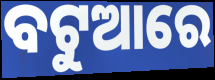
ବଟୁଆରେ